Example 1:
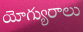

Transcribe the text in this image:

యోగ్యురాలు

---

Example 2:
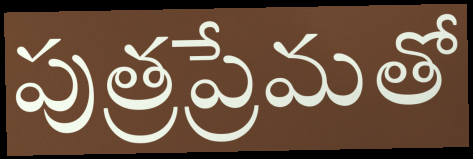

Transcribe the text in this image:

పుత్రప్రేమతో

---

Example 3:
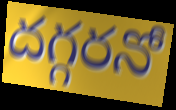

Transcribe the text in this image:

దగ్గరనో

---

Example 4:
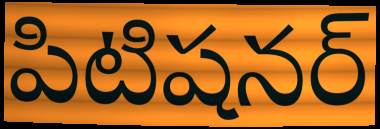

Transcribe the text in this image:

పిటిషనర్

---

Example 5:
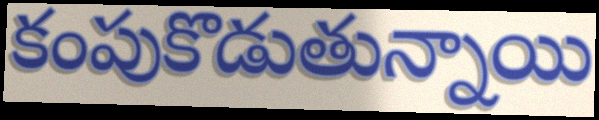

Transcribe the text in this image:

కంపుకొడుతున్నాయి